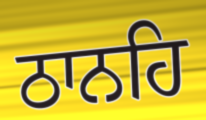
ਠਾਨਹਿ